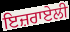
ਇਜ਼ਰਾਏਲੀ